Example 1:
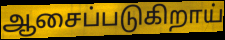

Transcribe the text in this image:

ஆசைப்படுகிறாய்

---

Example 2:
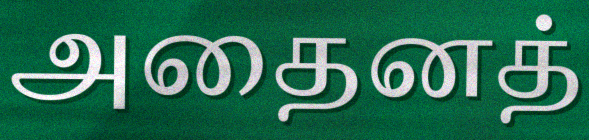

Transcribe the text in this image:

அதைனத்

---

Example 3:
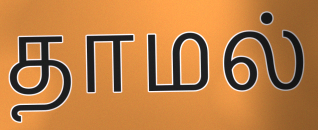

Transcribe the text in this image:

தாமல்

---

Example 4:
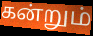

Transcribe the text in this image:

கன்றும்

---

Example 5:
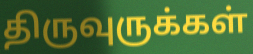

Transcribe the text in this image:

திருவுருக்கள்